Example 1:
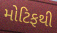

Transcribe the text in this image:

મોટિફથી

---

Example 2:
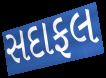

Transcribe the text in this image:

સદાફલ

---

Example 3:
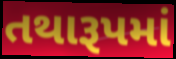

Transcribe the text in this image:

તથારૂપમાં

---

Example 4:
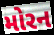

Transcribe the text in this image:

મોરન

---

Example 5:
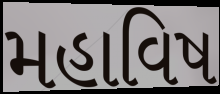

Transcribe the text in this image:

મહાવિષ